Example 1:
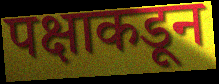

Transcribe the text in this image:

पक्षाकडून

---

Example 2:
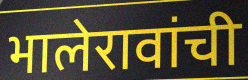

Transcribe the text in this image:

भालेरावांची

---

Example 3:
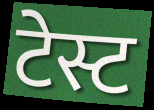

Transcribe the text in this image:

टेस्ट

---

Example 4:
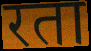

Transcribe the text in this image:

रता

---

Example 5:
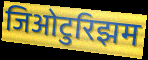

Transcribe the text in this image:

जिओटुरिझम